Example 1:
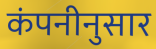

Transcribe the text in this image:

कंपनीनुसार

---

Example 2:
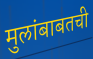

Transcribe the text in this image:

मुलांबाबतची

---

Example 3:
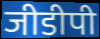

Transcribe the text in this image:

जीडीपी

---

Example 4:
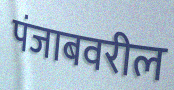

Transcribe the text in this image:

पंजाबवरील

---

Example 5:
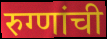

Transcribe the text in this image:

रुग्‍णांची